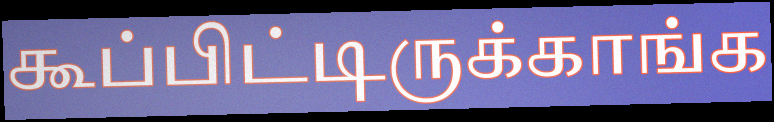
கூப்பிட்டிருக்காங்க